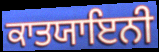
ਕਾਤਯਾਇਨੀ